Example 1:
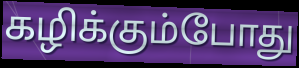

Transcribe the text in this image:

கழிக்கும்போது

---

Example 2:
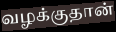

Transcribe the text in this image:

வழக்குதான்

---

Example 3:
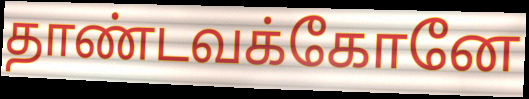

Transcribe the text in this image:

தாண்டவக்கோனே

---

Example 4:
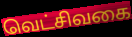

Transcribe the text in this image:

வெட்சிவகை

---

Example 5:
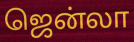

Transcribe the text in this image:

ஜென்லா